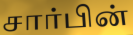
சார்பின்